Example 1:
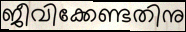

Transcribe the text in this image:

ജീവിക്കേണ്ടതിനു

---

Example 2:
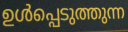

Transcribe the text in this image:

ഉൾപ്പെടുത്തുന്ന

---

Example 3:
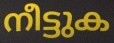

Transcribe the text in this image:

നീട്ടുക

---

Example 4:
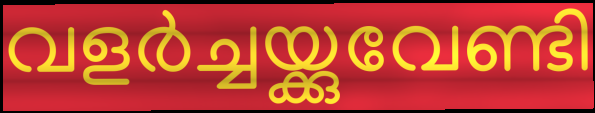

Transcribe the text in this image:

വളർച്ചയ്ക്കുവേണ്ടി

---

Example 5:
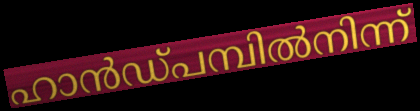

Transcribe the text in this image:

ഹാൻഡ്പമ്പിൽനിന്ന്